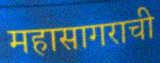
महासागराची